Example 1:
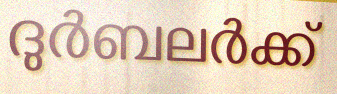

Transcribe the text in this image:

ദുർബലർക്ക്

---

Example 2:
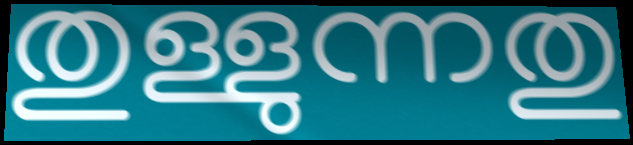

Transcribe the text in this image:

തുള്ളുന്നതു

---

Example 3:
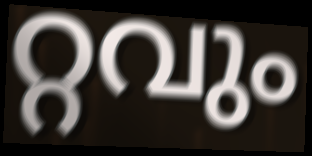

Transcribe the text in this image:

റ്റവും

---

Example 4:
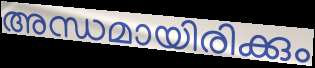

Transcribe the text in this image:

അന്ധമായിരിക്കും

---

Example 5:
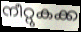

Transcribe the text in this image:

നീറ്റുകക്ക